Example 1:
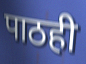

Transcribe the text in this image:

पाठही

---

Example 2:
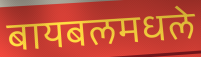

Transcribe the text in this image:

बायबलमधले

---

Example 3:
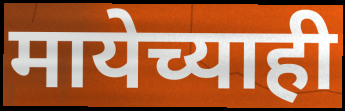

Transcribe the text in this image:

मायेच्याही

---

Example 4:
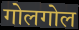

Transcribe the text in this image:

गोलगोल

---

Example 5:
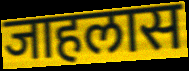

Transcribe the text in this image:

जाहलास